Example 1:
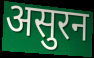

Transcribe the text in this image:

असुरन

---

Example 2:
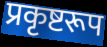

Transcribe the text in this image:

प्रकृष्टरूप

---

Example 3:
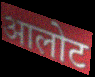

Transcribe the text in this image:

आलोट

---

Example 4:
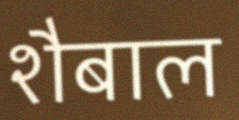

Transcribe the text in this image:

शैबाल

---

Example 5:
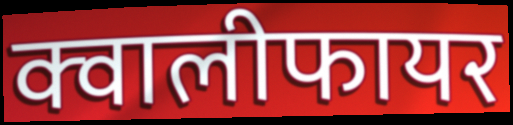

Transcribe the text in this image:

क्‍वालीफायर